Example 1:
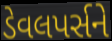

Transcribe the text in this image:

ડેવલપર્સને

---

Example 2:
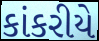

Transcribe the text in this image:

કાંકરીયે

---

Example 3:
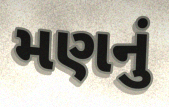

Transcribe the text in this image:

મણનું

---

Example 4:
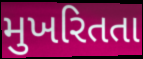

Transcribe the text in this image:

મુખરિતતા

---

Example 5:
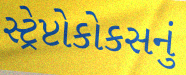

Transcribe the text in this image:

સ્ટ્રેપ્ટોકોકસનું